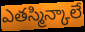
ఎతస్మిన్కాలే